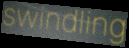
swindling